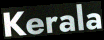
Kerala